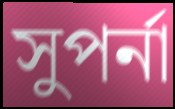
সুপর্না